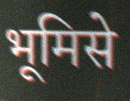
भूमिसे